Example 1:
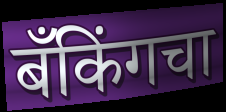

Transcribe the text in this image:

बँकिंगचा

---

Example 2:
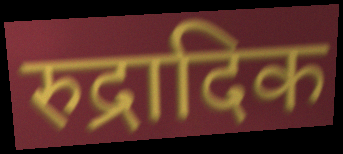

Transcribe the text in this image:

रुद्रादिक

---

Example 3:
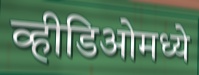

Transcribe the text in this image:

व्हीडिओमध्ये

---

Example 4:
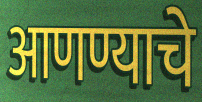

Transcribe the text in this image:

आणण्याचे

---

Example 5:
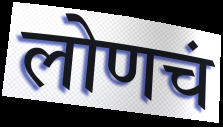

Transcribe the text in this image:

लोणचं